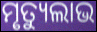
ମୃତ୍ୟୁଲାଭ